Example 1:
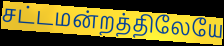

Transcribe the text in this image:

சட்டமன்றத்திலேயே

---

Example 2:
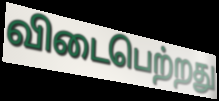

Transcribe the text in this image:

விடைபெற்றது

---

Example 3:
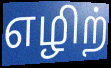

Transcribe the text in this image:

எழிற்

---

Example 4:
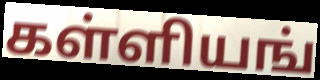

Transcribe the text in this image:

கள்ளியங்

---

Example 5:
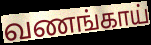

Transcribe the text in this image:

வணங்காய்